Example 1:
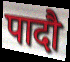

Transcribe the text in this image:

पादौ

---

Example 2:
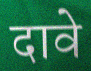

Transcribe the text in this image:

दावे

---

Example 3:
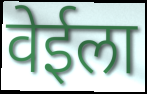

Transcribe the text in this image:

वेईला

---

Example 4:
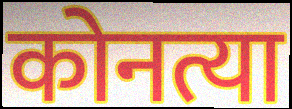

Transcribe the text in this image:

कोनत्या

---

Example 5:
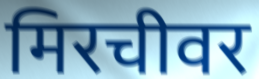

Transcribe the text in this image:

मिरचीवर